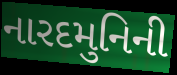
નારદમુનિની